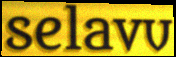
selavu